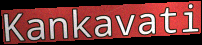
Kankavati